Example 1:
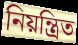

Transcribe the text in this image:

নিয়ন্ত্ৰিত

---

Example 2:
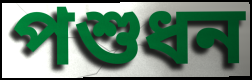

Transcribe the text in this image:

পশুধন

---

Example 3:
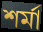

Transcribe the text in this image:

শৰ্মা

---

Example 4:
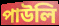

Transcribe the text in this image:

পাউলি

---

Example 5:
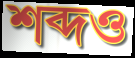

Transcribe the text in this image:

শব্দও